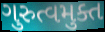
ગુરુત્વમુક્ત